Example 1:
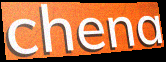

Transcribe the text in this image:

chena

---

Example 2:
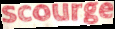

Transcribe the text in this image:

scourge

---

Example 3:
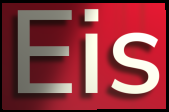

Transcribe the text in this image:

Eis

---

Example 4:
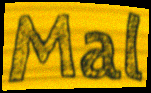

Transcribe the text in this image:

Mal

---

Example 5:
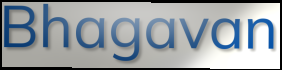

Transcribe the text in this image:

Bhagavan